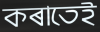
কৰাতেই